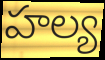
హల్య